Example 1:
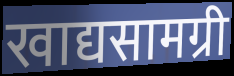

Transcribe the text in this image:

खाद्यसामग्री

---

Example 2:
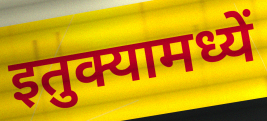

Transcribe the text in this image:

इतुक्यामध्यें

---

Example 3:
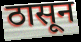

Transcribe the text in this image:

ठासून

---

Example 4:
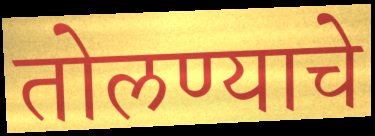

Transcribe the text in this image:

तोलण्याचे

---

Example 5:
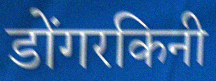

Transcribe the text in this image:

डोंगरकिनी